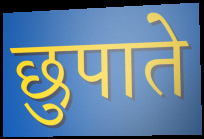
छुपाते